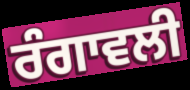
ਰੰਗਾਵਲੀ